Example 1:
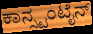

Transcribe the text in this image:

ಕಾನ್ಸ್ಟಂಟೈನ್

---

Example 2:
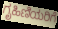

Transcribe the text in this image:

ಗೃಹಿಣಿಯರಿಗೆ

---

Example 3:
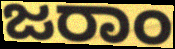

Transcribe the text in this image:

ಜರಾಂ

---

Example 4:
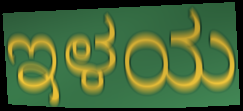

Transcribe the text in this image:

ಇಳಯ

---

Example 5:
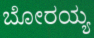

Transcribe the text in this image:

ಬೋರಯ್ಯ